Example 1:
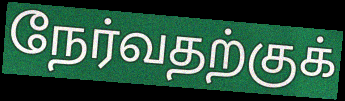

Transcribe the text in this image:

நேர்வதற்குக்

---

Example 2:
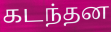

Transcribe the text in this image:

கடந்தன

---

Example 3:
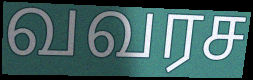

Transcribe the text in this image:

வவரச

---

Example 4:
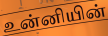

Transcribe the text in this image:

உன்னியின்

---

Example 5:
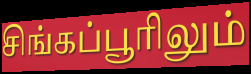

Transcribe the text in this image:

சிங்கப்பூரிலும்